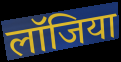
लॉजिया